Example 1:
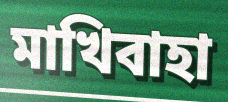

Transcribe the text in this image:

মাখিবাহা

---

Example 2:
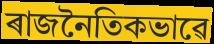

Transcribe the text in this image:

ৰাজনৈতিকভাৱে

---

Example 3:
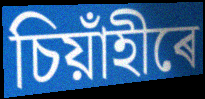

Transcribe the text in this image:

চিয়াঁহীৰে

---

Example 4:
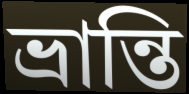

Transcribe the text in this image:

ভ্ৰান্তি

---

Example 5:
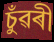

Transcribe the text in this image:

চুঁৱৰী